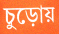
চুড়োয়